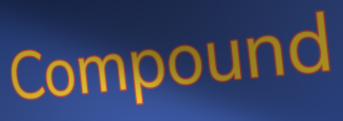
Compound